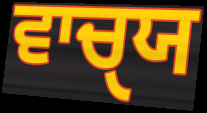
ਵਾਚੑਯ